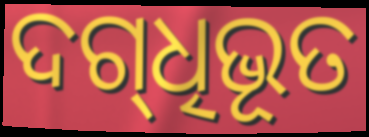
ଦଗ୍‍ଧିଭୂତ